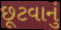
છૂટવાનું